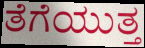
ತೆಗೆಯುತ್ತ